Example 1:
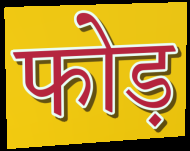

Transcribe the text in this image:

फोड़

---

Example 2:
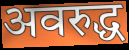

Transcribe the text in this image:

अवरुद्ध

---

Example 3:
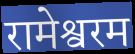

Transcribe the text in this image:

रामेश्वरम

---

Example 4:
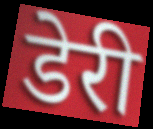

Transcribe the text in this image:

डेरी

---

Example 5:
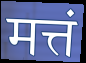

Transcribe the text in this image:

मत्तं